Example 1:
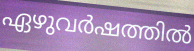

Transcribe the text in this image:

ഏഴുവർഷത്തിൽ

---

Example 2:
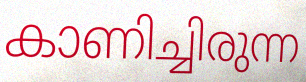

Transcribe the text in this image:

കാണിച്ചിരുന്ന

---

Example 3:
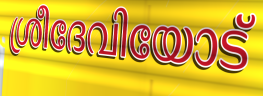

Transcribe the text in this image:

ശ്രീദേവിയോട്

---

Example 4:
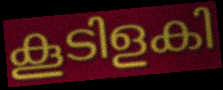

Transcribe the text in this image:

കൂടിളകി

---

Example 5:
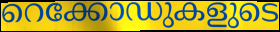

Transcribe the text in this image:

റെക്കോഡുകളുടെ